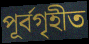
পূর্বগৃহীত